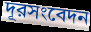
দূরসংবেদন